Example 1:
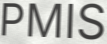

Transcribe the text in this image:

PMIS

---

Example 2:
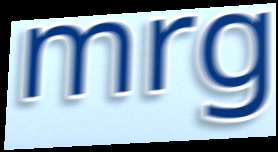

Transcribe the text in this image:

mrg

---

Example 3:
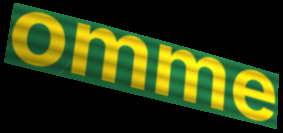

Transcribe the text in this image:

omme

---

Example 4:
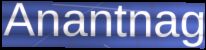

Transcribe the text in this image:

Anantnag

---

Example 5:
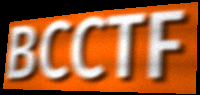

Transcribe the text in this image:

BCCTF